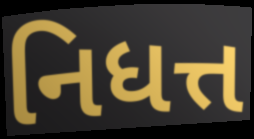
નિધત્ત